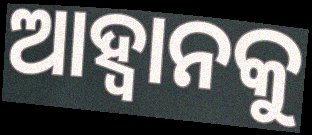
ଆହ୍ବାନକୁ